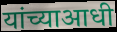
यांच्याआधी